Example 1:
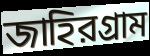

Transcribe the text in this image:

জাহিরগ্রাম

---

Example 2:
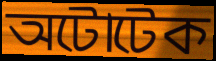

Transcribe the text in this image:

অটোটেক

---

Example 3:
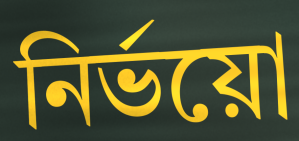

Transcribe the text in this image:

নির্ভয়ো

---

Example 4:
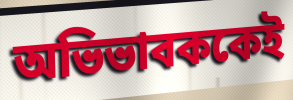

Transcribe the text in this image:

অভিভাবককেই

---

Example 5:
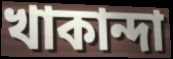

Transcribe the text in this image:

খাকান্দা